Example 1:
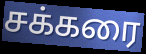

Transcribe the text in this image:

சக்கரை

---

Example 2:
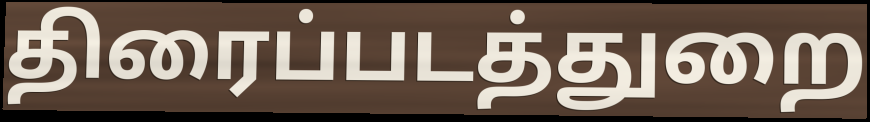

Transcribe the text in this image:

திரைப்படத்துறை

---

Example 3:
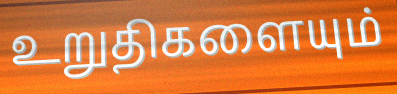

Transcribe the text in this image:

உறுதிகளையும்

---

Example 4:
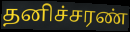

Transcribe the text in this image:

தனிச்சரண்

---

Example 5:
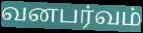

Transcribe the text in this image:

வனபர்வம்